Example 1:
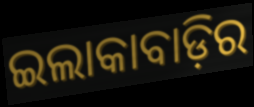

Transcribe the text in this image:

ଇଲାକାବାଡ଼ିର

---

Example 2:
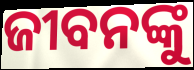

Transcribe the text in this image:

ଜୀବନଙ୍କୁ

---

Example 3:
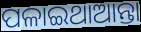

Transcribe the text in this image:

ପଳାଇଥାଆନ୍ତା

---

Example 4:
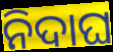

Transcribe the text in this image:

ନିଦାଘ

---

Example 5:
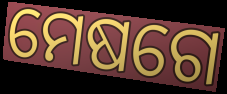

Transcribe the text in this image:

ମେଷଗେ